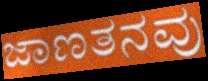
ಜಾಣತನವು